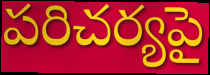
పరిచర్యపై